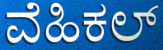
ವೆಹಿಕಲ್